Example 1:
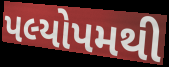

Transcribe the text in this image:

પલ્યોપમથી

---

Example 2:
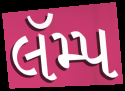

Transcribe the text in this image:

લૅમ્પ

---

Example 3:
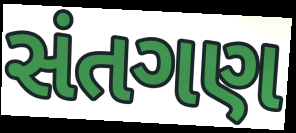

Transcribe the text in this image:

સંતગણ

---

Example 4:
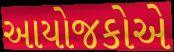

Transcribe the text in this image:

આયોજકોએ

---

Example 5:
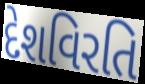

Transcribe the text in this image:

દેશવિરતિ